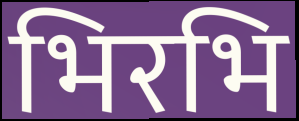
भिरभि